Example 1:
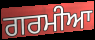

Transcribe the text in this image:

ਗਰਮੀਆ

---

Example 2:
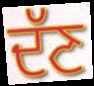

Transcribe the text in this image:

ਦੱਣ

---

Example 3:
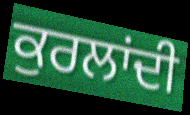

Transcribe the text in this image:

ਕੁਰਲਾਂਦੀ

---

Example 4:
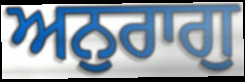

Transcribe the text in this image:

ਅਨੁਰਾਗੁ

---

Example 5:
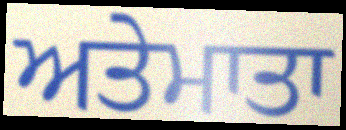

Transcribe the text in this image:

ਅਤੇਮਾਤਾ